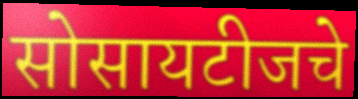
सोसायटीजचे